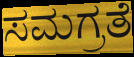
ಸಮಗ್ರತೆ